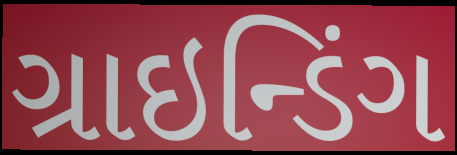
ગ્રાઇન્ડિંગ